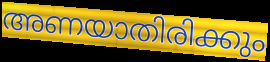
അണയാതിരിക്കും